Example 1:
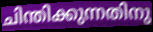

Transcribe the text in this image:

ചിന്തിക്കുന്നതിനു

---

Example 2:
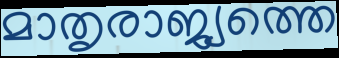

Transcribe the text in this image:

മാതൃരാജ്യത്തെ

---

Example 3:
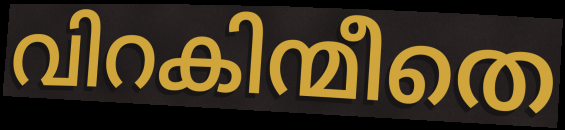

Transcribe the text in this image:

വിറകിന്മീതെ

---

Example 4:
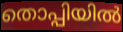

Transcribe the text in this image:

തൊപ്പിയിൽ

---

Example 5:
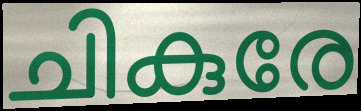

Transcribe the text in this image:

ചികുരേ